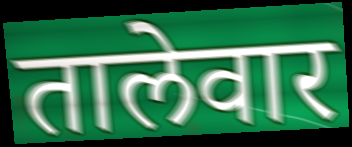
तालेवार